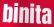
binita